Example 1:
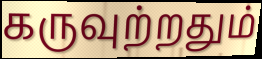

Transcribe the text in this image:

கருவுற்றதும்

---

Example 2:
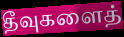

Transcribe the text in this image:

தீவுகளைத்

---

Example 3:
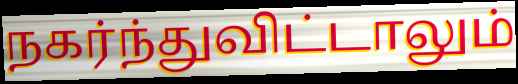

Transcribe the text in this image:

நகர்ந்துவிட்டாலும்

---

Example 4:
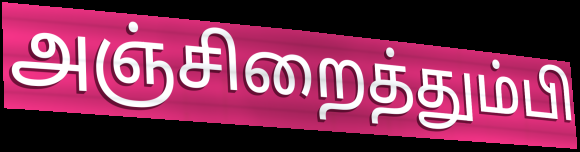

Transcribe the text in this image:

அஞ்சிறைத்தும்பி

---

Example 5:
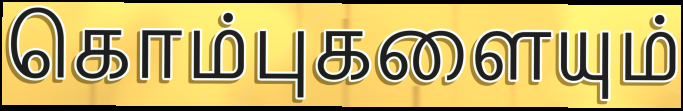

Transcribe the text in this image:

கொம்புகளையும்